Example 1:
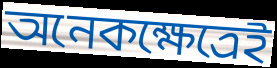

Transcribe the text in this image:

অনেকক্ষেত্রেই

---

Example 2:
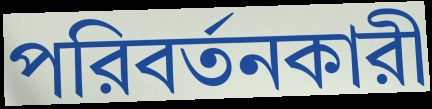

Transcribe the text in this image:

পরিবর্তনকারী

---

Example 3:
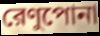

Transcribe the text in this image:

রেণুপোনা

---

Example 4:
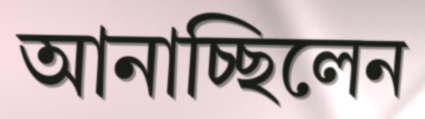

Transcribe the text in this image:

আনাচ্ছিলেন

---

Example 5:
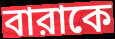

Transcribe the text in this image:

বারাকে